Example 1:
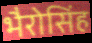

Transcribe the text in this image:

भैरोसिंह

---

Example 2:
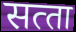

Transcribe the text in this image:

सत्‍ता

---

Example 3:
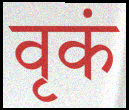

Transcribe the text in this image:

वृकं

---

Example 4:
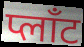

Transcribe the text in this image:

प्लाँट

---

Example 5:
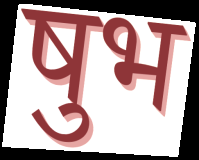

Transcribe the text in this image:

षुभ